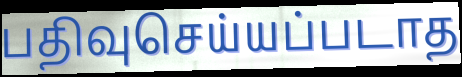
பதிவுசெய்யப்படாத